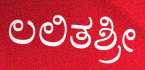
ಲಲಿತಶ್ರೀ